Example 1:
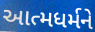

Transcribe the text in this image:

આત્મધર્મને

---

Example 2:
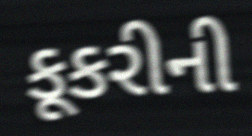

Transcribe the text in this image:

કૂકરીની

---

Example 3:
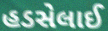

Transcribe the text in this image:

હડસેલાઈ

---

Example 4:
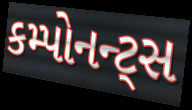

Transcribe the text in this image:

કમ્પોનન્ટ્સ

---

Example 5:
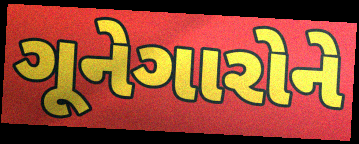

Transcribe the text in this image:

ગૂનેગારોને